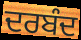
ਦਰਬੰਦ